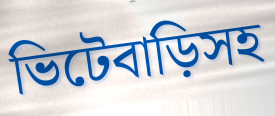
ভিটেবাড়িসহ